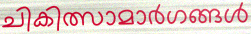
ചികിത്സാമാർഗങ്ങൾ